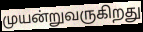
முயன்றுவருகிறது